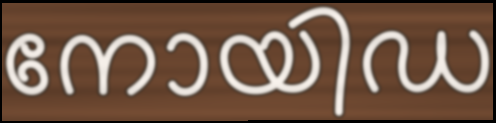
നോയിഡ